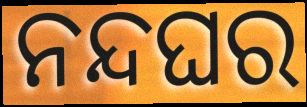
ନନ୍ଦଘର